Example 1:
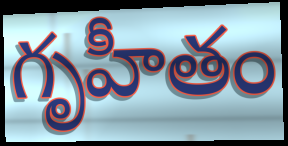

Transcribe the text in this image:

గృహీతం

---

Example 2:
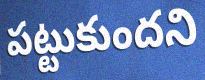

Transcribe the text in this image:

పట్టుకుందని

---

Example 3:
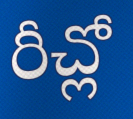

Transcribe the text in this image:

రీచ్లో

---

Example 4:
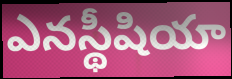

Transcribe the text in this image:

ఎనస్థీషియా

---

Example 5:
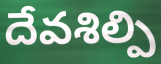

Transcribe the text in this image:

దేవశిల్పి